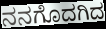
ನನಗೊದಗಿದ